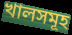
খালসমূহ